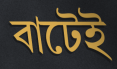
বাটেই